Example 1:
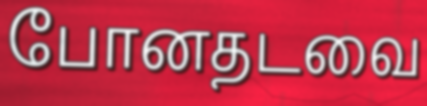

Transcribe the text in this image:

போனதடவை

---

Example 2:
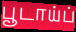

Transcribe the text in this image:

பூடாய்ப்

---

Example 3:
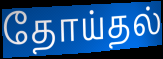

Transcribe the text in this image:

தோய்தல்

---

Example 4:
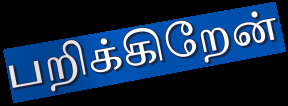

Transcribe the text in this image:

பறிக்கிறேன்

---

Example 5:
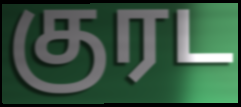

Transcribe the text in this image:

குரட